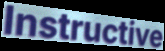
Instructive